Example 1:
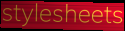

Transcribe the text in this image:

stylesheets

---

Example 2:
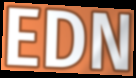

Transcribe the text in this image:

EDN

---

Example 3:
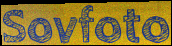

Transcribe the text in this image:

Sovfoto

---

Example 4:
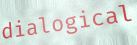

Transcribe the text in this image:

dialogical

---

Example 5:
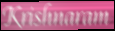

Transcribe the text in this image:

Krishnaram